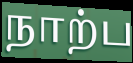
நாற்ப